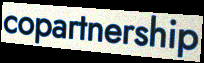
copartnership